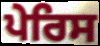
ਪੇਰਿਸ